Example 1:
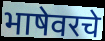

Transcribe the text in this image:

भाषेवरचे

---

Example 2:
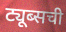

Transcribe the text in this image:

ट्यूब्सची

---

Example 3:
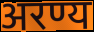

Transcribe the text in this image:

अरण्य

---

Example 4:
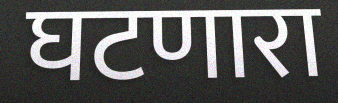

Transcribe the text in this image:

घटणारा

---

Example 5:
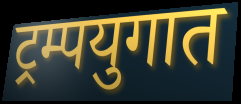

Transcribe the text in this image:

ट्रम्पयुगात